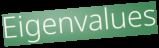
Eigenvalues